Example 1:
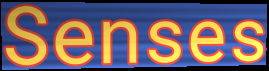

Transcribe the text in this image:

Senses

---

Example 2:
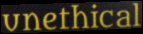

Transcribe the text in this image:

unethical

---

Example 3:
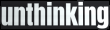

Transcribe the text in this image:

unthinking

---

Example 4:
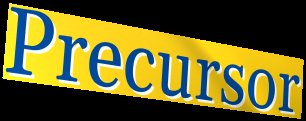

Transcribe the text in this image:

Precursor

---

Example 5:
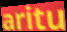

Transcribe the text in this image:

aritu